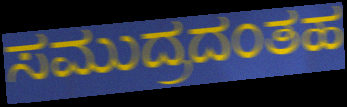
ಸಮುದ್ರದಂತಹ